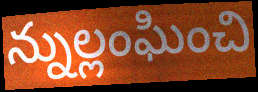
న్నుల్లంఘించి